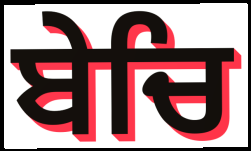
ਬੇਚਿ